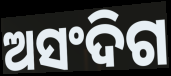
ଅସଂଦିଗ